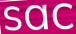
sac